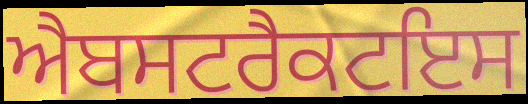
ਐਬਸਟਰੈਕਟਇਸ